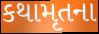
કથામૃતના